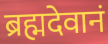
ब्रह्मदेवानं